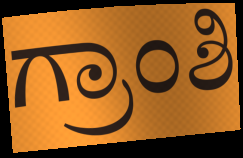
ಗ್ರಾಂಶಿ